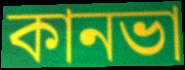
কানভা